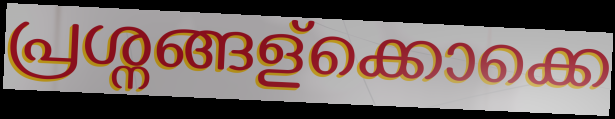
പ്രശ്നങ്ങള്ക്കൊക്കെ